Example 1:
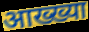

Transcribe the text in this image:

आख्ख्या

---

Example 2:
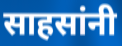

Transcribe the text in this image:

साहसांनी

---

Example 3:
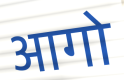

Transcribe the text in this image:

आगो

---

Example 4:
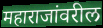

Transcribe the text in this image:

महाराजांवरील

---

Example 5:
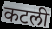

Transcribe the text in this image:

कटली